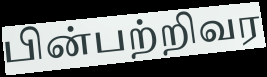
பின்பற்றிவர